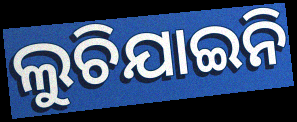
ଲୁଚିଯାଇନି